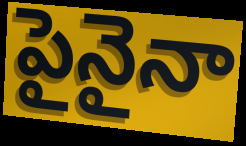
పైనైనా